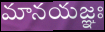
మానయజ్ఞః